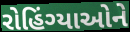
રોહિંગ્યાઓને